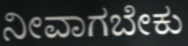
ನೀವಾಗಬೇಕು